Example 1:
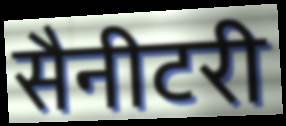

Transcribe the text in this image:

सैनीटरी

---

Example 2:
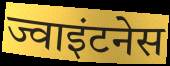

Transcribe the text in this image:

ज्वाइंटनेस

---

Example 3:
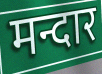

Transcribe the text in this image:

मन्दार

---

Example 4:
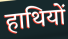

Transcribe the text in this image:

हाथियों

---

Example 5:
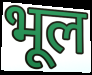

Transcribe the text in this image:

भूल